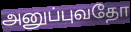
அனுப்புவதோ